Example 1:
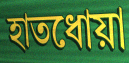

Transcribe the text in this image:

হাতধোয়া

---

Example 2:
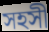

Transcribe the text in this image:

সহসী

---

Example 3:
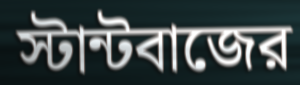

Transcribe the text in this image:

স্টান্টবাজের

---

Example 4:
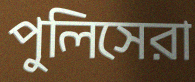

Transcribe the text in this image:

পুলিসেরা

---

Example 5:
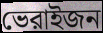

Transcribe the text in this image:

ভেরাইজন